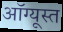
ऑग्यूस्त